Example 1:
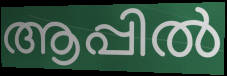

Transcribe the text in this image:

ആപ്പിൽ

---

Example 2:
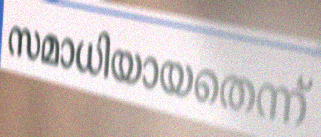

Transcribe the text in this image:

സമാധിയായതെന്ന്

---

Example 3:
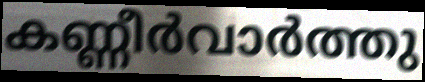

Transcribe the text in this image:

കണ്ണീർവാർത്തു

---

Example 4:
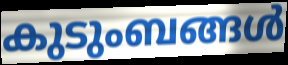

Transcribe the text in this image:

കുടുംബങ്ങൾ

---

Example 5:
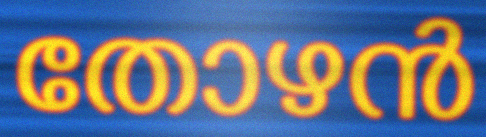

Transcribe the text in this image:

തോഴൻ